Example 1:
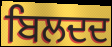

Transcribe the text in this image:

ਬਿਲਦਦ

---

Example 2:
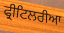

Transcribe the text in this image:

ਫ੍ਰੀਟਿਲਰੀਆ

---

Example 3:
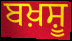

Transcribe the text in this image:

ਬਖ਼ਸ਼ੂ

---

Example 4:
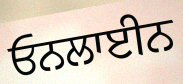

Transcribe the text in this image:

ਓਨਲਾਈਨ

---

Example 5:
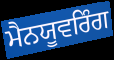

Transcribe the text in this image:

ਮੈਨਯੂਵਰਿੰਗ